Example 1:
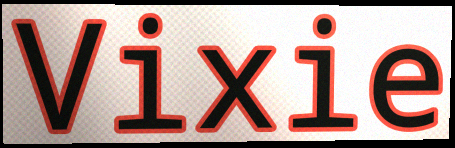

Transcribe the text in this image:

Vixie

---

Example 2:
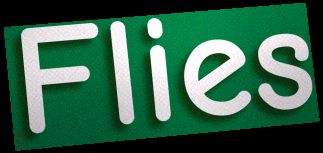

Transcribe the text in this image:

Flies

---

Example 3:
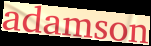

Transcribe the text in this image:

adamson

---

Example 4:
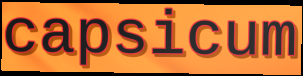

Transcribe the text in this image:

capsicum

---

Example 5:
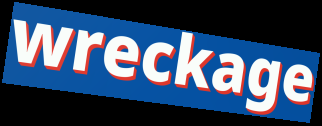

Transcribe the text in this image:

wreckage